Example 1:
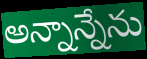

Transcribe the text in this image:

అన్నాన్నేను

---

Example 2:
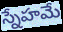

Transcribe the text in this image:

స్నేహమే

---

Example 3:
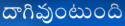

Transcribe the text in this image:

దాగివుంటుంది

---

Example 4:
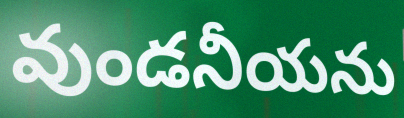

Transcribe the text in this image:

వుండనీయను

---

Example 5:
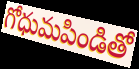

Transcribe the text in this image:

గోధుమపిండితో